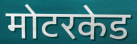
मोटरकेड